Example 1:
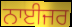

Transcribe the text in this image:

ਨਾਈਜਰ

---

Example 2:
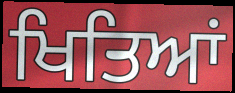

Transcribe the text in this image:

ਖਿਤਿਆਂ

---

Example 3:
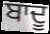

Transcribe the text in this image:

ਬਾਦੂ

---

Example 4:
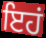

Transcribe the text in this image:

ਇਹਂ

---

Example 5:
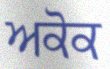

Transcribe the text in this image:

ਅਕੋਕ